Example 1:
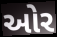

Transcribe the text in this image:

ઓર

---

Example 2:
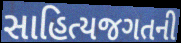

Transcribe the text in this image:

સાહિત્યજગતની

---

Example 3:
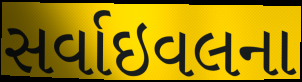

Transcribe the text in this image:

સર્વાઇવલના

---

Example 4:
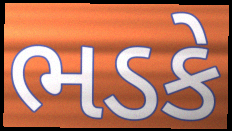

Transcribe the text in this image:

ભડકે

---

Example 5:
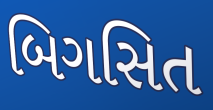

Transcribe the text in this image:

બિગસિત